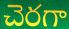
చెరగా